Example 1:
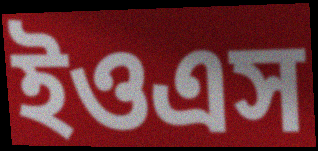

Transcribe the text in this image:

ইওএস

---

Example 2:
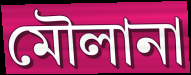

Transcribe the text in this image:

মৌলানা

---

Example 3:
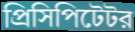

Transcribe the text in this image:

প্রিসিপিটেটর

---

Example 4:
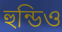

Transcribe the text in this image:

হুন্ডিও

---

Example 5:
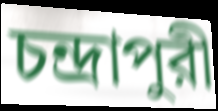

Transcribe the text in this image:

চন্দ্রাপুরী